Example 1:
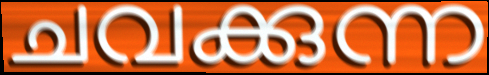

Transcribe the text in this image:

ചവക്കുന്ന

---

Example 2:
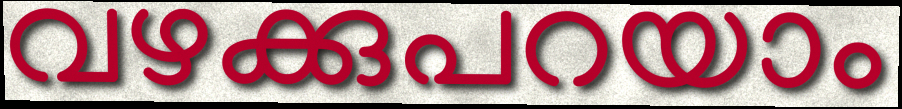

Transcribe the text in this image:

വഴക്കുപറയാം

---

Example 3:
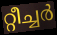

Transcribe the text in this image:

റ്റീച്ചർ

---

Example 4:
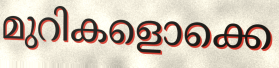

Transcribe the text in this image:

മുറികളൊക്കെ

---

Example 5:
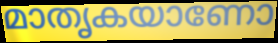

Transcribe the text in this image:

മാതൃകയാണോ